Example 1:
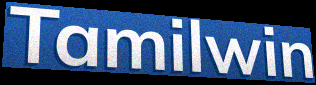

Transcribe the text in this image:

Tamilwin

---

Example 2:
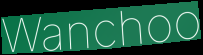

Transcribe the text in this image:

Wanchoo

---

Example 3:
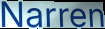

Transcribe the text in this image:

Narren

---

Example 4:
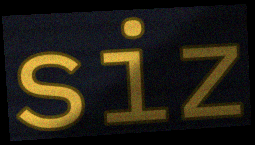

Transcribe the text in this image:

siz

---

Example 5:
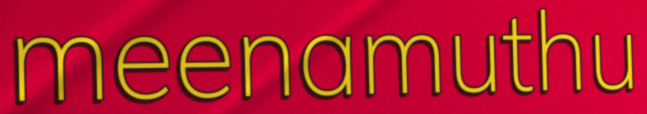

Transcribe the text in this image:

meenamuthu